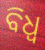
ବିଧ୍ଵ